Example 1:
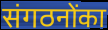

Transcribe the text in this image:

संगठनोंका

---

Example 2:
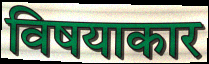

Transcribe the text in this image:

विषयाकार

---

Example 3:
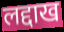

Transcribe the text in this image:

लद्दाख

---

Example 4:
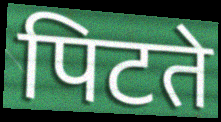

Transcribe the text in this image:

पिटते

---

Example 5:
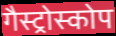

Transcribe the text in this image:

गैस्ट्रोस्कोप